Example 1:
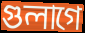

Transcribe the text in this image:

গুলাগে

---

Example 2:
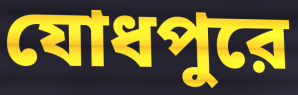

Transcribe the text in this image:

যোধপুরে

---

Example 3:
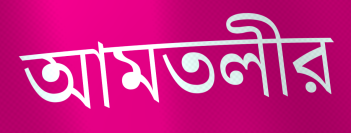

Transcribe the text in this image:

আমতলীর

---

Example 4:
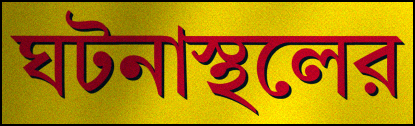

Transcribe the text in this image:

ঘটনাস্থলের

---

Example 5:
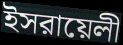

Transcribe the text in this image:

ইসরায়েলী